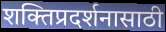
शक्तिप्रदर्शनासाठी